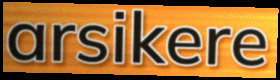
arsikere